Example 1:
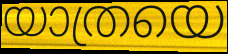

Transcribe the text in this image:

യാത്രയെ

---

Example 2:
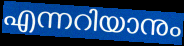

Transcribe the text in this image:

എന്നറിയാനും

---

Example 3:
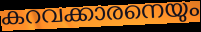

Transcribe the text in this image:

കറവക്കാരനെയും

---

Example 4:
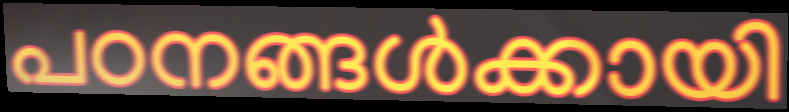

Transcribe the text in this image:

പഠനങ്ങൾക്കായി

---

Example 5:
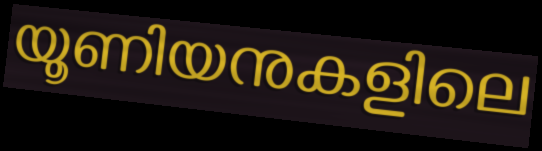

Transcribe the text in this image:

യൂണിയനുകളിലെ